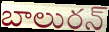
బాలురన్